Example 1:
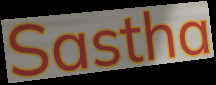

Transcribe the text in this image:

Sastha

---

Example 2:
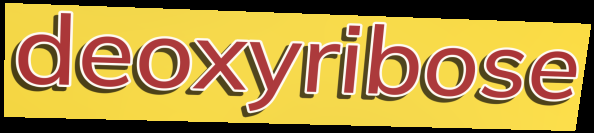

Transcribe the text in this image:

deoxyribose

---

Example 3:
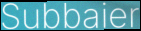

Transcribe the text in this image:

Subbaier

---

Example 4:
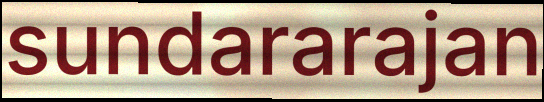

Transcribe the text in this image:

sundararajan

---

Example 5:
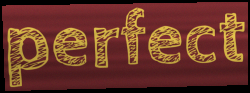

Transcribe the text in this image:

perfect